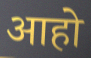
आहो